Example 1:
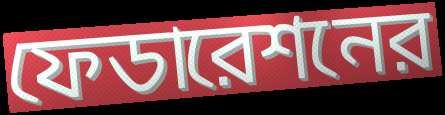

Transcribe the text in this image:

ফেডারেশনের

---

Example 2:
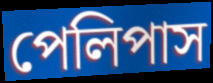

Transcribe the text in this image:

পেলিপাস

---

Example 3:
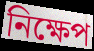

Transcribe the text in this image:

নিক্ষেপ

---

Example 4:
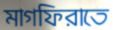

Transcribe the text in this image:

মাগফিরাতে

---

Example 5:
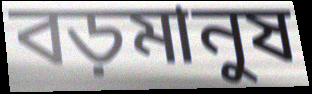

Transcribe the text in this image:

বড়মানুষ